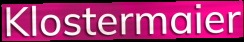
Klostermaier